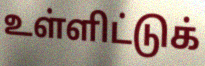
உள்ளிட்டுக்